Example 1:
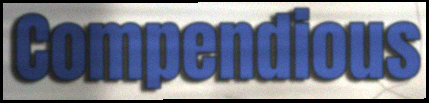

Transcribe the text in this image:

Compendious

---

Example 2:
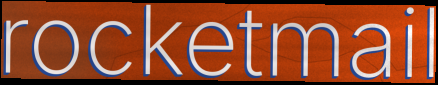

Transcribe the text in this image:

rocketmail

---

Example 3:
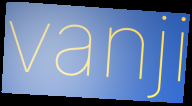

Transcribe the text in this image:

vanji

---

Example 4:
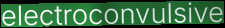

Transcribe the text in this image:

electroconvulsive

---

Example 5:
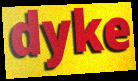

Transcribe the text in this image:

dyke